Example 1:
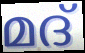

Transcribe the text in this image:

മദ്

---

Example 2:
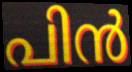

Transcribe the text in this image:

പിൻ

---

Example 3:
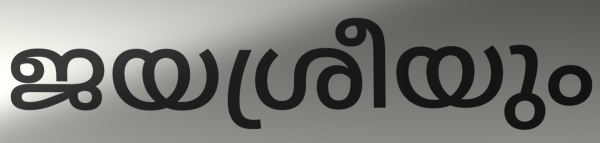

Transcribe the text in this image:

ജയശ്രീയും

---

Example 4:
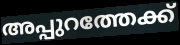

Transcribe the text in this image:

അപ്പുറത്തേക്ക്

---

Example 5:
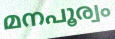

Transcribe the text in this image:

മനപൂര്വം